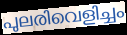
പുലരിവെളിച്ചം